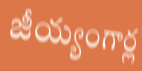
జీయ్యంగార్ల